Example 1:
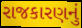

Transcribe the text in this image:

રાજકારણનું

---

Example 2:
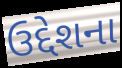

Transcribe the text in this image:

ઉદ્દેશના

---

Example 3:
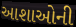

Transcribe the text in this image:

આશાઓની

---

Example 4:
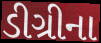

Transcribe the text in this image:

ડીગ્રીના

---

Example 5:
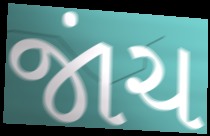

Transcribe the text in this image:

જાંચ